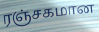
ரஞ்சகமான